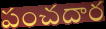
పంచదార